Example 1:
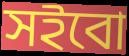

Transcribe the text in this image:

সইবো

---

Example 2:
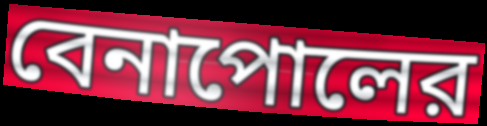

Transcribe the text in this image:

বেনাপোলের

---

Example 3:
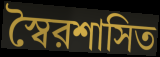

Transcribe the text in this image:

স্বৈরশাসিত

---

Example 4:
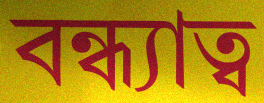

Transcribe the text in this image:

বন্ধ্যাত্ব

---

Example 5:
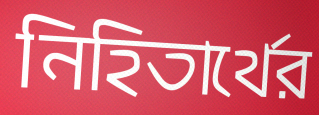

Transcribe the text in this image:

নিহিতার্থের